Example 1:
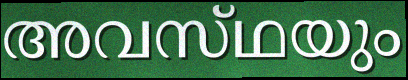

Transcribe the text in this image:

അവസ്‌ഥയും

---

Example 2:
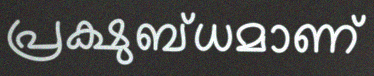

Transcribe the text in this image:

പ്രക്ഷുബ്ധമാണ്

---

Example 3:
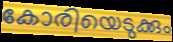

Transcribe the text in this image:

കോരിയെടുക്കും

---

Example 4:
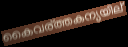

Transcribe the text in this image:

കൈവര്ത്തകന്യയില്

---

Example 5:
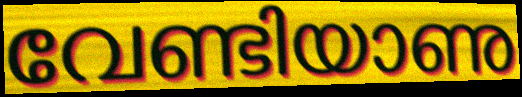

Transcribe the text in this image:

വേണ്ടിയാണു